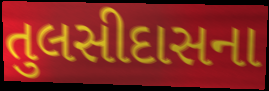
તુલસીદાસના